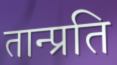
तान्प्रति